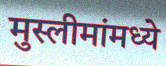
मुस्लीमांमध्ये